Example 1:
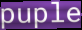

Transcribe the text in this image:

puple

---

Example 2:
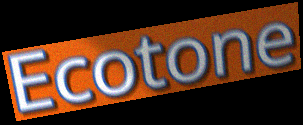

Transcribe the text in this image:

Ecotone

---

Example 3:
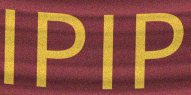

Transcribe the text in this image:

IPIP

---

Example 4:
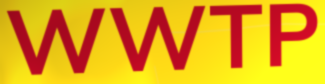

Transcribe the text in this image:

WWTP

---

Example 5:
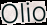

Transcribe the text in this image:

Olio